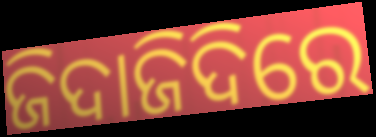
ଜିଦାଜିଦିରେ